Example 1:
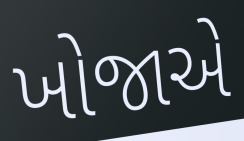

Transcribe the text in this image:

ખોજાએ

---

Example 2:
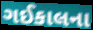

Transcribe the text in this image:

ગઈકાલના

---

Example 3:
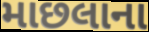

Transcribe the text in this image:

માછલાના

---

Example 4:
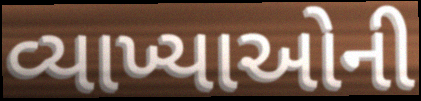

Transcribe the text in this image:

વ્યાખ્યાઓની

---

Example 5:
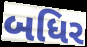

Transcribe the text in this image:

બધિર